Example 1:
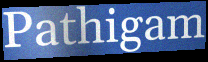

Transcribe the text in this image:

Pathigam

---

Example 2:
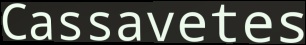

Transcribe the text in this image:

Cassavetes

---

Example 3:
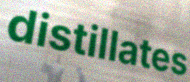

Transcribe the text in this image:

distillates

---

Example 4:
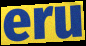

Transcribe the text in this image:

eru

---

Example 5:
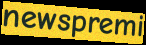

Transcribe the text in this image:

newspremi